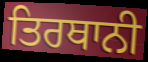
ਤਿਰਥਾਨੀ